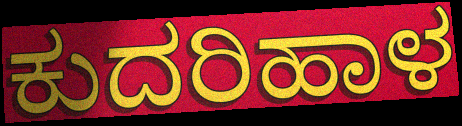
ಕುದರಿಹಾಳ